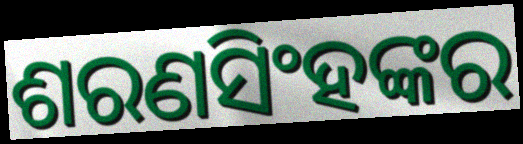
ଶରଣସିଂହଙ୍କର